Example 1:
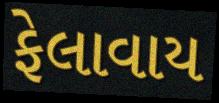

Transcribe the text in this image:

ફેલાવાય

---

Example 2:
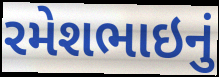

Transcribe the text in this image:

રમેશભાઇનું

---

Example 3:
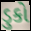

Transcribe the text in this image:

ડુકો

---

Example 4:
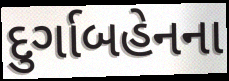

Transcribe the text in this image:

દુર્ગાબહેનના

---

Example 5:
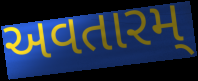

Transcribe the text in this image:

અવતારમ્